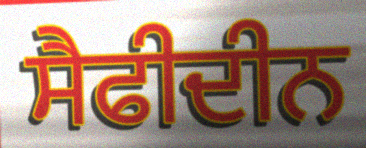
ਸੈਫੀਦੀਨ